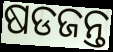
ଷଡଜନ୍ତ